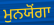
ਮੁਨਯੋਂਗਾ